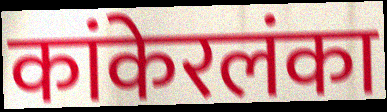
कांकेरलंका